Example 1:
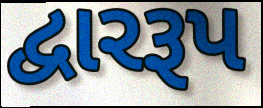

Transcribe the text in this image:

દ્વારરૂપ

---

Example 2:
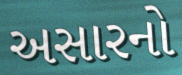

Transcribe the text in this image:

અસારનો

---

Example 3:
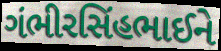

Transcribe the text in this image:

ગંભીરસિંહભાઈને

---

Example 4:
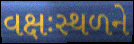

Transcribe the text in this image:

વક્ષઃસ્થળને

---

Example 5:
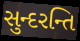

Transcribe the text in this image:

સુન્દરન્તિ